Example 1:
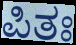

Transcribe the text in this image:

ಪಿತಃ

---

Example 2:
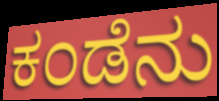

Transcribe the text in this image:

ಕಂಡೆನು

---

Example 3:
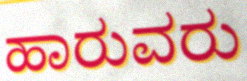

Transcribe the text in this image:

ಹಾರುವರು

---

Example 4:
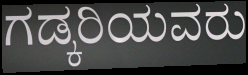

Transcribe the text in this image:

ಗಡ್ಕರಿಯವರು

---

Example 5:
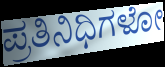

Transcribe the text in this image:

ಪ್ರತಿನಿಧಿಗಳೋ